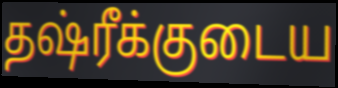
தஷ்ரீக்குடைய